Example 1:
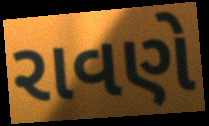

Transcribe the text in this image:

રાવણે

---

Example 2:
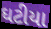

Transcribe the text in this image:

ઘટીયા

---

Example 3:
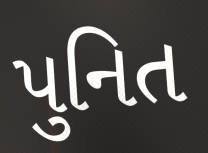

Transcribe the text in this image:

પુનિત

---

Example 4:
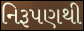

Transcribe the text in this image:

નિરૂપણથી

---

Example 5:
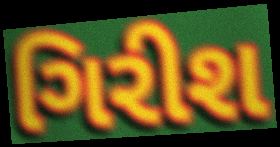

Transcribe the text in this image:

ગિરીશ